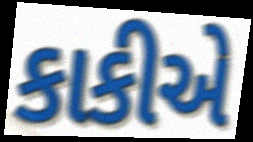
કાકીએ